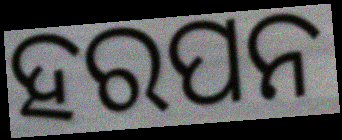
ହରପନ